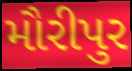
મૌરીપુર